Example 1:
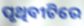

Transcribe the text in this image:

ପୃଥିବୀଟିରେ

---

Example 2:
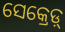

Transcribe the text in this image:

ସେକ୍ରେଡ଼୍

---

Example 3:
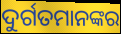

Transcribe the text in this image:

ଦୁର୍ଗତମାନଙ୍କର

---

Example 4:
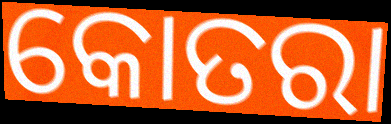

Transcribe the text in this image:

କୋତରା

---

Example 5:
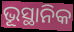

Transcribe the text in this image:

ଭୂସ୍ଥାନିକ